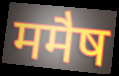
ममैष